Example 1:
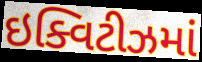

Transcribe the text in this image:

ઇક્વિટીઝમાં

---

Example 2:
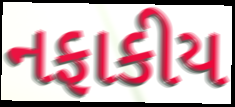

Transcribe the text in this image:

નફાકીય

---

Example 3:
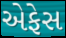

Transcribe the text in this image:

એફેસ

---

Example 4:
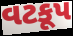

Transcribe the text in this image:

વટકૂપ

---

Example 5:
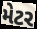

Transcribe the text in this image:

મેટર